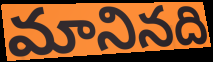
మానినది